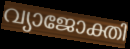
വ്യാജോക്തി